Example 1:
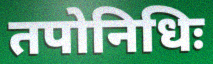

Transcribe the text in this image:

तपोनिधिः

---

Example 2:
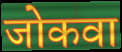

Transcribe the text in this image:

जोकवा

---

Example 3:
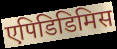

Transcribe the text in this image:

एपिडिडिमिस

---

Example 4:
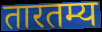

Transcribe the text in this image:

तारतम्य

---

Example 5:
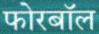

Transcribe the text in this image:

फोरबॉल